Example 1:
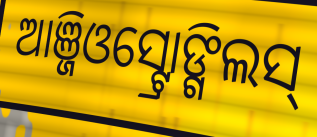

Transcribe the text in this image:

ଆଞ୍ଜିଓସ୍ଟ୍ରୋଙ୍ଗିଲସ୍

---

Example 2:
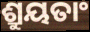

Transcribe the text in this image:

ଶ୍ରୁୟତାଂ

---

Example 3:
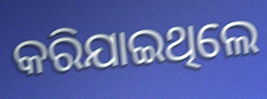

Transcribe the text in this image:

କରିଯାଇଥିଲେ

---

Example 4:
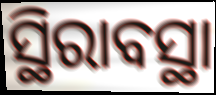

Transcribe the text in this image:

ସ୍ଥିରାବସ୍ଥା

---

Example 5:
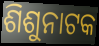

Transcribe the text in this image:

ଶିଶୁନାଟକ